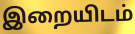
இறையிடம்